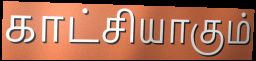
காட்சியாகும்